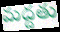
మద్దతు